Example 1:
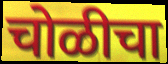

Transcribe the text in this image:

चोळीचा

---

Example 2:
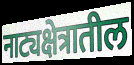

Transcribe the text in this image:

नाट्यक्षेत्रातील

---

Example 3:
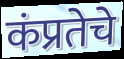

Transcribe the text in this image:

कंप्रतेचे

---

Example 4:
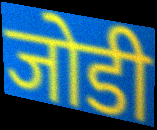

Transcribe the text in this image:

जोडी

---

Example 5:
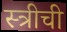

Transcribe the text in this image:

स्त्रीची